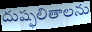
దుష్ఫలితాలను